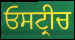
ਓਸਟ੍ਰੀਚ